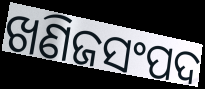
ଖଣିଜସଂପଦ